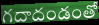
గదాదండంతో